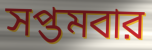
সপ্তমবার